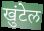
खुंटेल